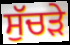
ਸੁੱਚੜੇ